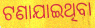
ଟଣାଯାଇଥିବା